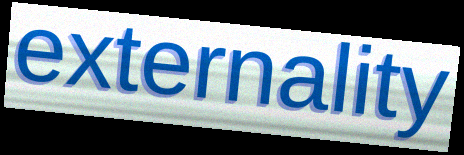
externality